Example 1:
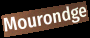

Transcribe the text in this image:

Mourondge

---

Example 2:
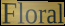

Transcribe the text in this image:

Floral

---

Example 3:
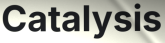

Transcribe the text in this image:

Catalysis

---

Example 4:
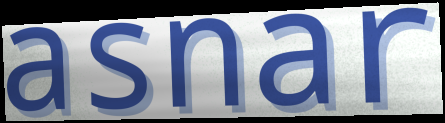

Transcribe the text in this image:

asnar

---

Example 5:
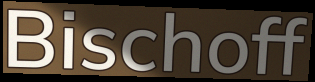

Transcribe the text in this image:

Bischoff